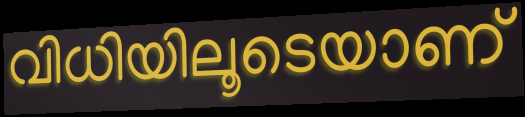
വിധിയിലൂടെയാണ്